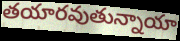
తయారవుతున్నాయా